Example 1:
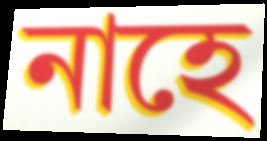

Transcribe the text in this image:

নাহে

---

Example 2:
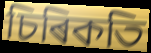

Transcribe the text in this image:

চিৰিকতি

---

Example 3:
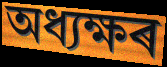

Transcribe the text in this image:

অধ্যক্ষৰ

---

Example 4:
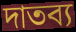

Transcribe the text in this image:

দাতব্য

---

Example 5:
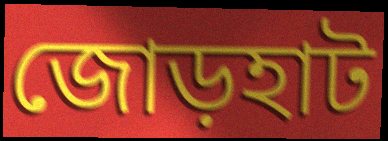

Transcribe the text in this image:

জোড়হাট